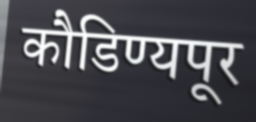
कौडिण्यपूर